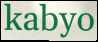
kabyo